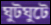
ঘুটঘুটে